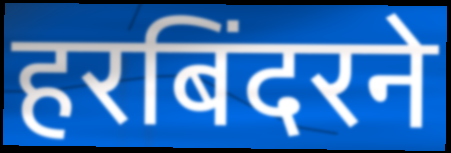
हरबिंदरने